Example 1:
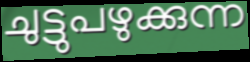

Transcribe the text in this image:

ചുട്ടുപഴുക്കുന്ന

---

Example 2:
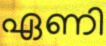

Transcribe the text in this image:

ഏണി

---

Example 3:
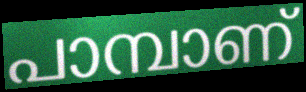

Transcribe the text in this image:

പാമ്പാണ്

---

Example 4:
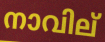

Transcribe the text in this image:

നാവില്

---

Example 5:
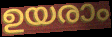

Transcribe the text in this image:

ഉയരാം